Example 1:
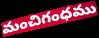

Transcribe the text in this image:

మంచిగంధము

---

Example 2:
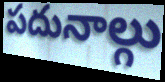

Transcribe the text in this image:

పదునాల్గు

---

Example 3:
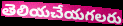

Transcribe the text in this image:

తెలియచేయగలరు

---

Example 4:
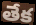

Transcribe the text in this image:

తేక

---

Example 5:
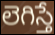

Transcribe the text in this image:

లెగిస్తే